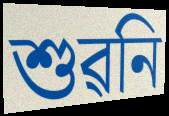
শুৱনি